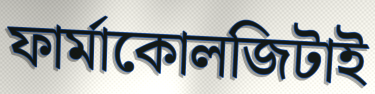
ফার্মাকোলজিটাই